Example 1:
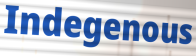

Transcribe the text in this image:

Indegenous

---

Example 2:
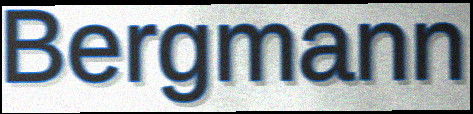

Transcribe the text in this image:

Bergmann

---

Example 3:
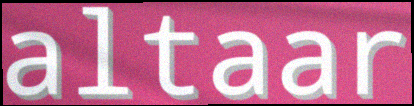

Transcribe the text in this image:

altaar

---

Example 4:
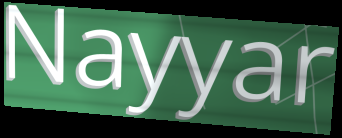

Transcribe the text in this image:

Nayyar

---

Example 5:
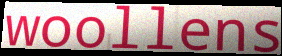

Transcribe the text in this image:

woollens